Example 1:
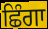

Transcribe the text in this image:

ਛਿੰਗਾ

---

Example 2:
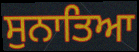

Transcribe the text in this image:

ਸੁਨਾਤਿਆ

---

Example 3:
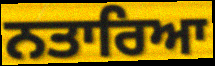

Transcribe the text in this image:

ਨਤਾਰਿਆ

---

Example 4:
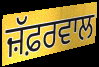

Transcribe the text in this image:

ਜ਼ੱਫ਼ਰਵਾਲ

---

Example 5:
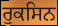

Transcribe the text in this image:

ਰੁਕਸਿਨ